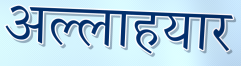
अल्लाहयार